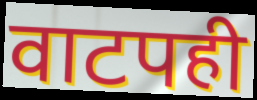
वाटपही